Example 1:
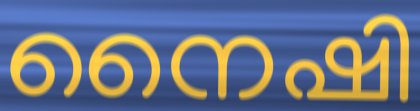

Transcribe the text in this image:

നൈഷി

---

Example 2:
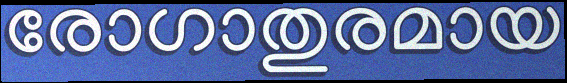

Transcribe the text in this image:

രോഗാതുരമായ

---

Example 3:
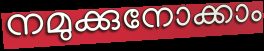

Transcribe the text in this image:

നമുക്കുനോക്കാം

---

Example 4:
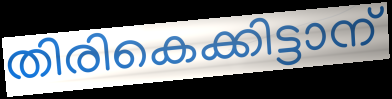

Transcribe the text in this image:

തിരികെക്കിട്ടാന്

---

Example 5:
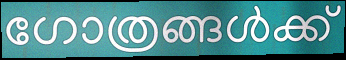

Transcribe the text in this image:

ഗോത്രങ്ങൾക്ക്